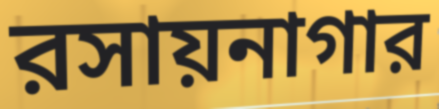
রসায়নাগার